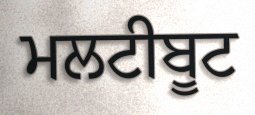
ਮਲਟੀਬੂਟ